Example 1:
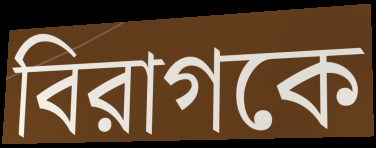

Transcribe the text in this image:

বিরাগকে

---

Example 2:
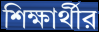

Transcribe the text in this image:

শিক্ষার্থীর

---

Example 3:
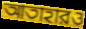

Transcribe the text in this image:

আতাহারও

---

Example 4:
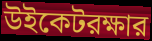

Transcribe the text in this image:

উইকেটরক্ষার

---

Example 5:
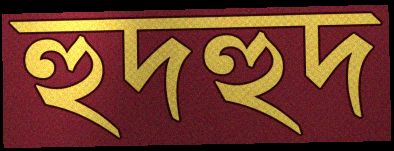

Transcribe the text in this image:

হুদহুদ